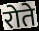
रोते